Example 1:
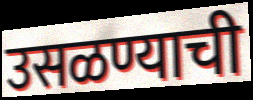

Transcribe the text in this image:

उसळण्याची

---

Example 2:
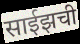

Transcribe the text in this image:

साईझची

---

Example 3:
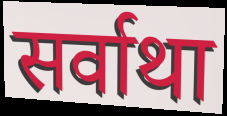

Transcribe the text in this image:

सर्वाथा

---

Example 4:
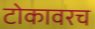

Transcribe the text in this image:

टोकावरच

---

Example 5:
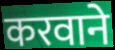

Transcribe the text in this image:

करवाने